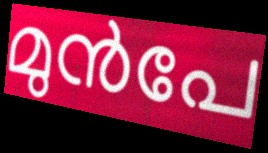
മുൻപേ